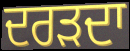
ਦਰੜਦਾ